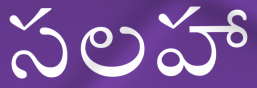
సలహా